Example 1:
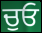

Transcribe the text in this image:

ਚੁਓ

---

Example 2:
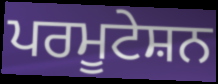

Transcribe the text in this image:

ਪਰਮੂਟੇਸ਼ਨ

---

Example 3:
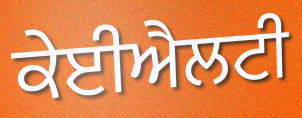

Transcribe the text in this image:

ਕੇਈਐਲਟੀ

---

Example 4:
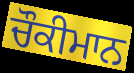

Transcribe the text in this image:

ਚੌਕੀਮਾਨ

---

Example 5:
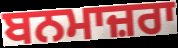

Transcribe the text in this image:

ਬਨਮਾਜ਼ਰਾ